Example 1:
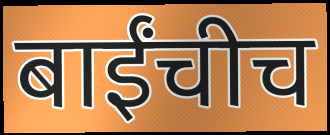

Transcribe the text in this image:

बाईंचीच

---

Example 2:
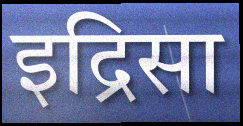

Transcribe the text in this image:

इद्रिसा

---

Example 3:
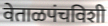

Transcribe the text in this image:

वेताळपंचविशी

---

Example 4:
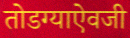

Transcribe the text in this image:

तोडग्याऐवजी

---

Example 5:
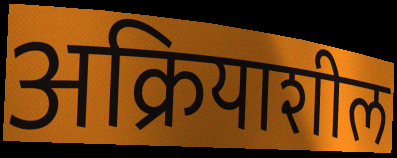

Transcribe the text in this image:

अक्रियाशील